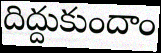
దిద్దుకుందాం